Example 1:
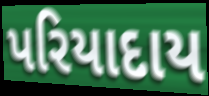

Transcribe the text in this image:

પરિયાદાય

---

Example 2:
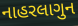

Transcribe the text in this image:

નાહરલાગુન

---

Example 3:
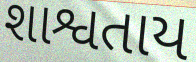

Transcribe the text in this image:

શાશ્વતાય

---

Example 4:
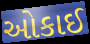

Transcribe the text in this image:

ઓકાઈ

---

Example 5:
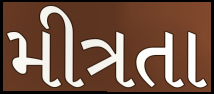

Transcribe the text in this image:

મીત્રતા